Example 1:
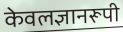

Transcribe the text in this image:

केवलज्ञानरूपी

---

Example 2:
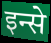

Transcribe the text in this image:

इन्से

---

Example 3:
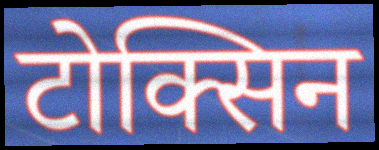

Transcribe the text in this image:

टोक्सिन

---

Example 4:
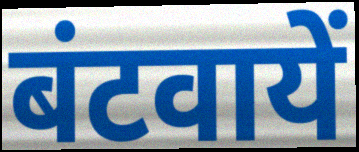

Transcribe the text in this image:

बंटवायें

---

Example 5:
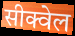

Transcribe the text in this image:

सीक्वेल